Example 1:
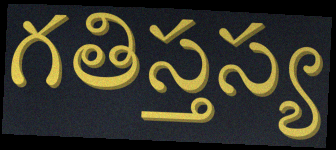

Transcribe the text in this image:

గతిస్తస్య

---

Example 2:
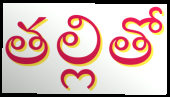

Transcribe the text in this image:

తల్లితో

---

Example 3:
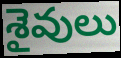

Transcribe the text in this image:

శైవులు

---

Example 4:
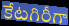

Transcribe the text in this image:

కేటగిరీగా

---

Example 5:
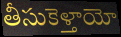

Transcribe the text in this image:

తీసుకెళ్తాయో